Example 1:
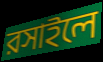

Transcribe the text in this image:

রসাইলে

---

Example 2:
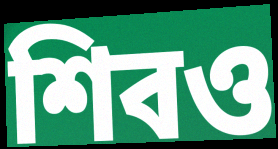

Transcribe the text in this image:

শিবও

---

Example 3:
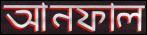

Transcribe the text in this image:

আনফাল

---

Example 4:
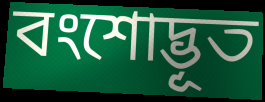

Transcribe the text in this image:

বংশোদ্ভূত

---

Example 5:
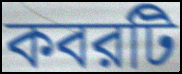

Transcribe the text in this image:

কবরটি